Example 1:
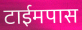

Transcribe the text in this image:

टाईमपास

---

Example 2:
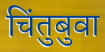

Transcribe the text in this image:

चिंतुबुवा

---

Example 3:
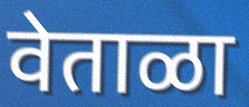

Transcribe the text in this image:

वेताळा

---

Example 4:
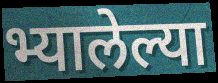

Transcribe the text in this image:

भ्यालेल्या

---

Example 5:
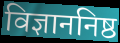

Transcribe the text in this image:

विज्ञाननिष्ठ